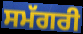
ਸਮੱਗਰੀ